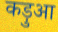
कड़ुआ